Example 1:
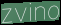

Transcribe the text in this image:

zvino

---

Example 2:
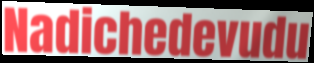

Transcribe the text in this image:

Nadichedevudu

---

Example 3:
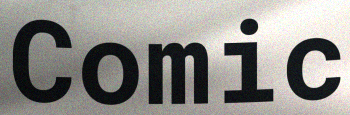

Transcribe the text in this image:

Comic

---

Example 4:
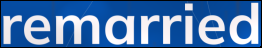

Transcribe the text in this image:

remarried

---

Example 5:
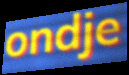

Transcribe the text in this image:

ondje